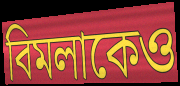
বিমলাকেও